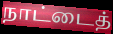
நாட்டைத்